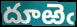
దూఱెఁ